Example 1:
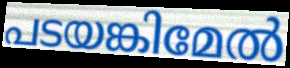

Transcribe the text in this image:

പടയങ്കിമേൽ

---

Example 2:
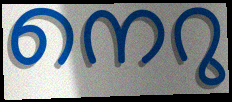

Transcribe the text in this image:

നെറു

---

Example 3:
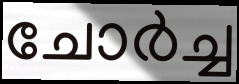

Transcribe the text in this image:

ചോർച്ച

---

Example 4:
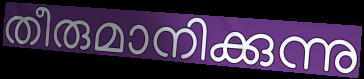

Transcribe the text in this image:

തീരുമാനിക്കുന്നു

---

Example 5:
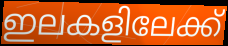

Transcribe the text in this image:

ഇലകളിലേക്ക്